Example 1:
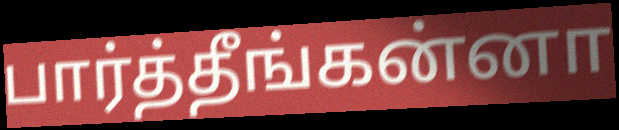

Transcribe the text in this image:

பார்த்தீங்கன்னா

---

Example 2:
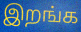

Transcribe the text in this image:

இறங்க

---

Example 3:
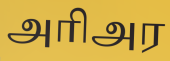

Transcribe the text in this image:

அரிஅர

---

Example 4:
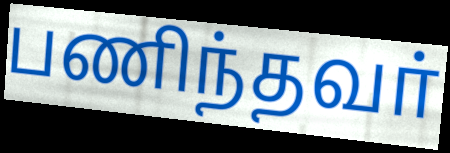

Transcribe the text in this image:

பணிந்தவர்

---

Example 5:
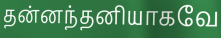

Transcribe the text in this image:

தன்னந்தனியாகவே